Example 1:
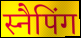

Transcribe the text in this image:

स्नैपिंग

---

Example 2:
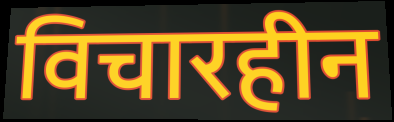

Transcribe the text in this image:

विचारहीन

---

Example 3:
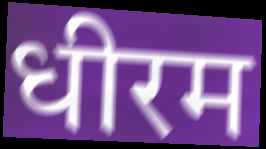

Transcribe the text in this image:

धीरम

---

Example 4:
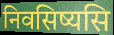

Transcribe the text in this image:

निवसिष्यसि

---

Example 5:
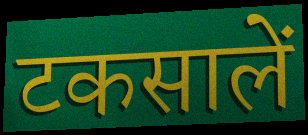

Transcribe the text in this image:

टकसालें